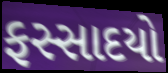
ફસ્સાદયો